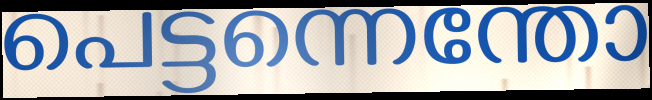
പെട്ടന്നെന്തോ